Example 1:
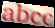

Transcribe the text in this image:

abcc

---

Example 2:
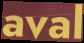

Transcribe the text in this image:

aval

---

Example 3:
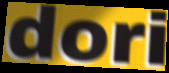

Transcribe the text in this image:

dori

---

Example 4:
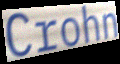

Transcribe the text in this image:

Crohn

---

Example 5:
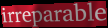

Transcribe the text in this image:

irreparable